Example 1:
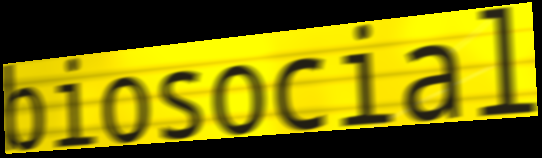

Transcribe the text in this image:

biosocial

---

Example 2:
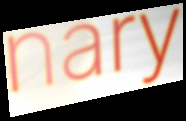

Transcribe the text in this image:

nary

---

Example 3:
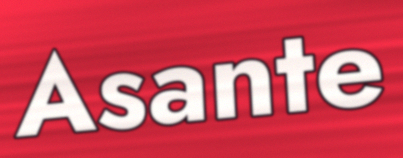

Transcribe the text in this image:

Asante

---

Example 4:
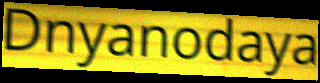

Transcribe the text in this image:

Dnyanodaya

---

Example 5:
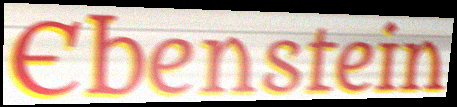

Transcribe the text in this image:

Ebenstein